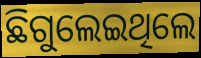
ଛିଗୁଲେଇଥିଲେ